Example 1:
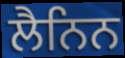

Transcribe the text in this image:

ਲੈਨਿਨ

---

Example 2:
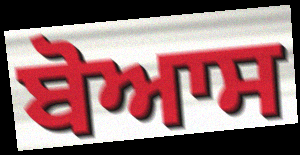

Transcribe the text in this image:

ਬੋਆਸ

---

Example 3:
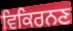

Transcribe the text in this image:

ਵਿਕਿਰਨਣ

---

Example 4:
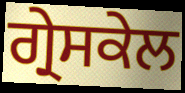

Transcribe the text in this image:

ਗ੍ਰੇਸਕੇਲ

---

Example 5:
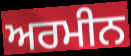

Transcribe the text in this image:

ਅਰਮੀਨ